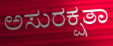
ಅಸುರಕ್ಷತಾ